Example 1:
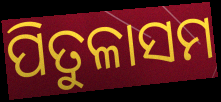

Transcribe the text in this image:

ପିତୁଳାସମ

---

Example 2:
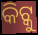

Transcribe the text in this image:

କିଟ୍କୁ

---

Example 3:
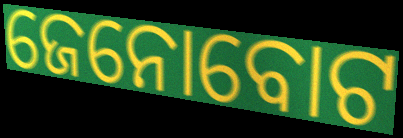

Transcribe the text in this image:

ଜେନୋବୋଟ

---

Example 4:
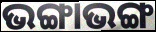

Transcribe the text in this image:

ଭଙ୍ଗାଭଙ୍ଗ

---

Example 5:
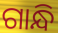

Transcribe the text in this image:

ଗାନ୍ଧି